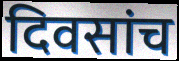
दिवसांच